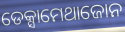
ଡେକ୍ସାମେଥାଜୋନ